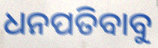
ଧନପତିବାବୁ